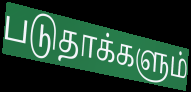
படுதாக்களும்